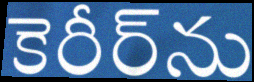
కెరీర్‌ను